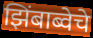
झिंबाब्वेचे